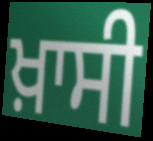
ਖ਼ਾਸੀ